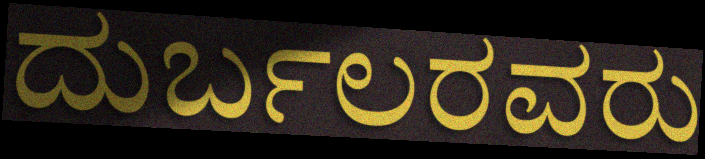
ದುರ್ಬಲರವರು